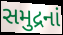
સમુદ્રનાં